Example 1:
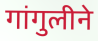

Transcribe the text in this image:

गांगुलीने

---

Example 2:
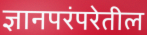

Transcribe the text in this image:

ज्ञानपरंपरेतील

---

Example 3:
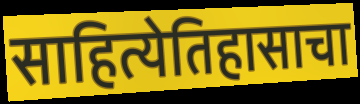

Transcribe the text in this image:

साहित्येतिहासाचा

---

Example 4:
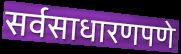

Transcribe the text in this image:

सर्वसाधारणपणे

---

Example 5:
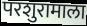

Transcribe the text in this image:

परशुरामाला